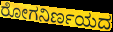
ರೋಗನಿರ್ಣಯದ